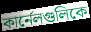
কার্নেলগুলিকে